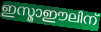
ഇസ്മാഈലിന്